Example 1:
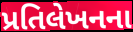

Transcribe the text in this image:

પ્રતિલેખનના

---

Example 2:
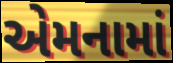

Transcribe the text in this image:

એમનામાં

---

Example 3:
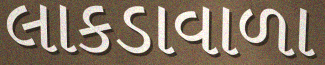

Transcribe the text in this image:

લાકડાવાળા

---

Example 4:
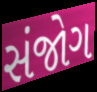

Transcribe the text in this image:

સંજોગ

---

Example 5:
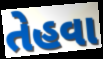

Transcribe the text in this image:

તેહવા